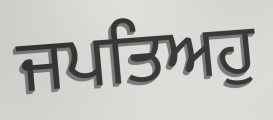
ਜਪਤਿਅਹੁ